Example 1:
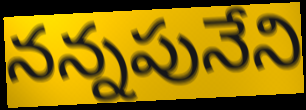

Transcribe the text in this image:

నన్నపునేని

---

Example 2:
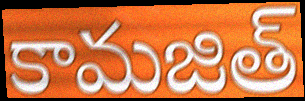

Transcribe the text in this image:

కామజిత్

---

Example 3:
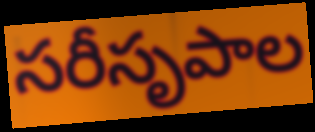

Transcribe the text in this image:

సరీసృపాల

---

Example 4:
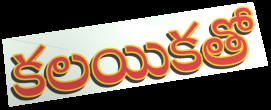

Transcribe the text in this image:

కలయికతో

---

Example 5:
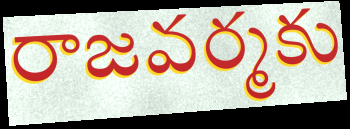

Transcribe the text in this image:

రాజవర్మకు